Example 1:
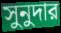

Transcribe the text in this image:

সুনুদার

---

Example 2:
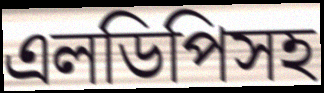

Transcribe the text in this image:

এলডিপিসহ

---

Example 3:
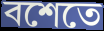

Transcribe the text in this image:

বশেতে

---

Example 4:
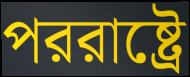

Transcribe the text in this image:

পররাষ্ট্রে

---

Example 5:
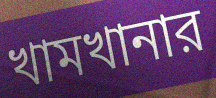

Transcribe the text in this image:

খামখানার